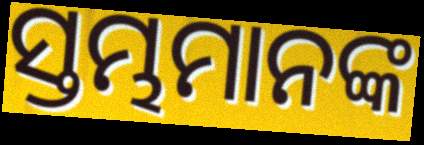
ସ୍ତମ୍ଭମାନଙ୍କ